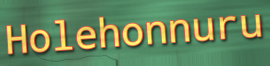
Holehonnuru